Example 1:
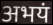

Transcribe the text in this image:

अभयं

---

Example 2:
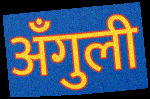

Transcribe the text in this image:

अँगुली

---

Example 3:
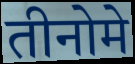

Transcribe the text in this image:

तीनोमे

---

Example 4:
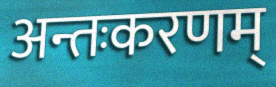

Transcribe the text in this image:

अन्तःकरणम्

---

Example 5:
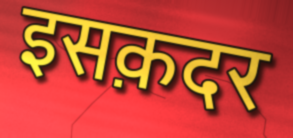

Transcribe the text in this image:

इसक़दर